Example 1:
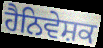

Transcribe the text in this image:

ਹੈਨਿਵੇਸ਼ਕ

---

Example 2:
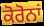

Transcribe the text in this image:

ਕੋਰੋਨਾਂ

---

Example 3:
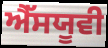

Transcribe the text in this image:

ਐੱਸਯੂਵੀ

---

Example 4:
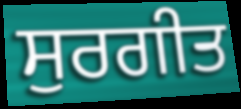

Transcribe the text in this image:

ਸੁਰਗੀਤ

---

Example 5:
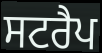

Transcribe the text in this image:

ਸਟਰੈਪ